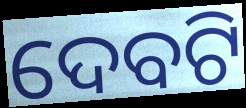
ଦେବଟି